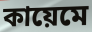
কায়েমে